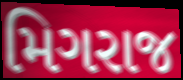
મિગરાજ